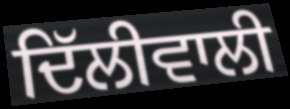
ਦਿੱਲੀਵਾਲੀ